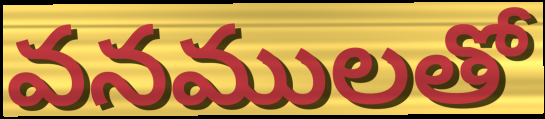
వనములతో